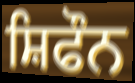
ਸ਼ਿਫੌਨ